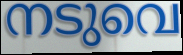
നടുവെ